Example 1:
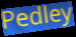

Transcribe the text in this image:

Pedley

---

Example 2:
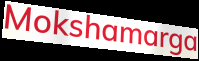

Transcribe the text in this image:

Mokshamarga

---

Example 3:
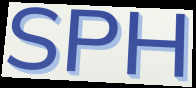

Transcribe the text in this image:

SPH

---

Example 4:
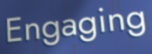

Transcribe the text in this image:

Engaging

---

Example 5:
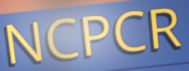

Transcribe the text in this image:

NCPCR